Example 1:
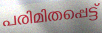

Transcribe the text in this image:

പരിമിതപ്പെട്ട്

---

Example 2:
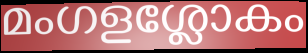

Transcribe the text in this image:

മംഗളശ്ലോകം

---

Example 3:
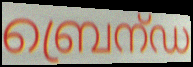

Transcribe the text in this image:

ബ്രെന്ഡ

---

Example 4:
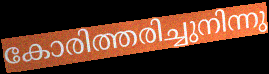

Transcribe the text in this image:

കോരിത്തരിച്ചുനിന്നു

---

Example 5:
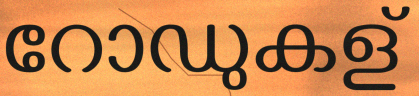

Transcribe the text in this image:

റോഡുകള്